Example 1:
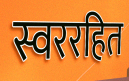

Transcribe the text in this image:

स्वररहित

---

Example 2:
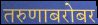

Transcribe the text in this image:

तरुणाबरोबर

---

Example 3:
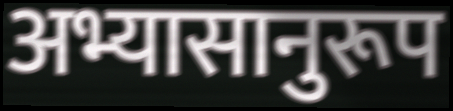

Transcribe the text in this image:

अभ्यासानुरूप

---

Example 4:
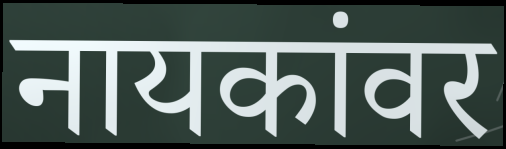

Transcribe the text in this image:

नायकांवर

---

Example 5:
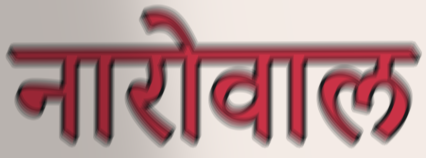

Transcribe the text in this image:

नारोवाल